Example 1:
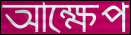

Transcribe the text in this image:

আক্ষেপ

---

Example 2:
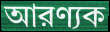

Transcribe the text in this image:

আরণ্যক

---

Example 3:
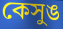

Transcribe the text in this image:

কেসুঙ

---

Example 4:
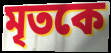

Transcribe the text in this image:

মৃতকে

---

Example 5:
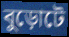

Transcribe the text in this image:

বুড়োটে